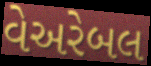
વેઅરેબલ